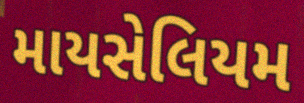
માયસેલિયમ